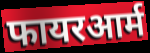
फायरआर्म